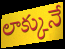
లాక్కునే